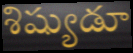
శిష్యుడూ